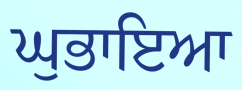
ਘੁਭਾਇਆ